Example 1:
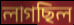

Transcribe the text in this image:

লাগছিল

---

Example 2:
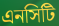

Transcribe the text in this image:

এনসিটি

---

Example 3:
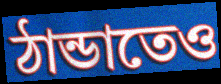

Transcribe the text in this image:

ঠান্ডাতেও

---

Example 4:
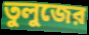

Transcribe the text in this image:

তুলুজের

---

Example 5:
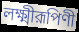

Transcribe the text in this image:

লক্ষ্মীরূপিণী